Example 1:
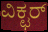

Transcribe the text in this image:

ವಿಕ್ಟರ್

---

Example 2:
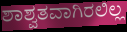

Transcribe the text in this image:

ಶಾಶ್ವತವಾಗಿರಲಿಲ್ಲ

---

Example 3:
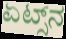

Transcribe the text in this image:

ಏಟ್ಸ್‌ನ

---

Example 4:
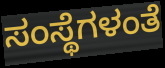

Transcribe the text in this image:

ಸಂಸ್ಥೆಗಳಂತೆ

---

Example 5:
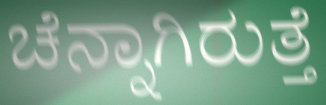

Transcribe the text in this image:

ಚೆನ್ನಾಗಿರುತ್ತೆ